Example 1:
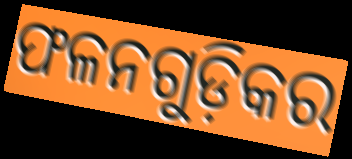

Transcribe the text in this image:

ଫଳନଗୁଡ଼ିକର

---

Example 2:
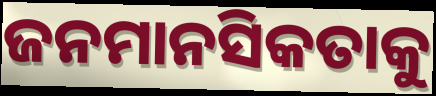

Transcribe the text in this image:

ଜନମାନସିକତାକୁ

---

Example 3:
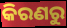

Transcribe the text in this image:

କିରଣରୁ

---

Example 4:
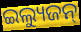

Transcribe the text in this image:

ଇଲ୍ୟୁଜନ୍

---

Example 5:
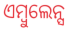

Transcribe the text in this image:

ଏମ୍ବୁଲେନ୍ସ